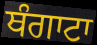
ਥੰਗਾਟਾ